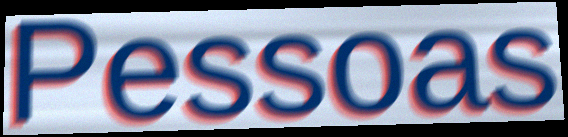
Pessoas